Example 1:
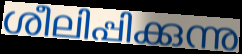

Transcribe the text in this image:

ശീലിപ്പിക്കുന്നു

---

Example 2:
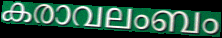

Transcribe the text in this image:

കരാവലംബം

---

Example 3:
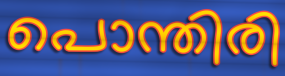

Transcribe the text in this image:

പൊന്തിരി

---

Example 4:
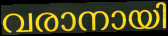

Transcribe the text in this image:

വരാനായി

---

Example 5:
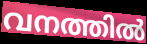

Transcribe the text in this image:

വനത്തിൽ